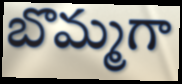
బొమ్మగా